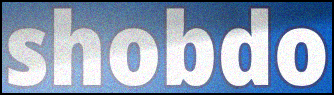
shobdo